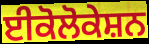
ਈਕੋਲੋਕੇਸ਼ਨ